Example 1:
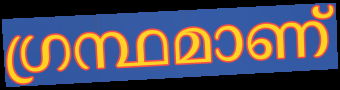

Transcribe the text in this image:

ഗ്രന്ഥമാണ്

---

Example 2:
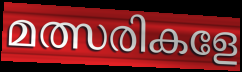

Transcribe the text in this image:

മത്സരികളേ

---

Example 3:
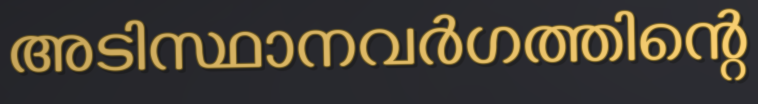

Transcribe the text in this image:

അടിസ്ഥാനവർഗത്തിന്റെ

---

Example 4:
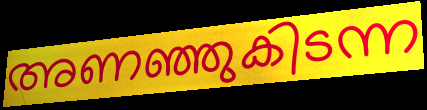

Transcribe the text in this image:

അണഞ്ഞുകിടന്ന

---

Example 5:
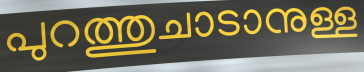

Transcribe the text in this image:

പുറത്തുചാടാനുള്ള